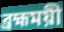
ব্রহ্মময়ী